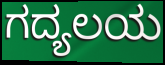
ಗದ್ಯಲಯ